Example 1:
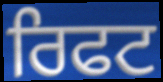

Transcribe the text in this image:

ਰਿਫਟ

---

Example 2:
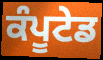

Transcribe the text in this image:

ਕੰਪੂਟੇਡ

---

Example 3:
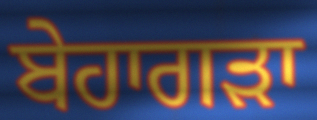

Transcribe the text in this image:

ਬੇਹਾਗੜਾ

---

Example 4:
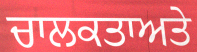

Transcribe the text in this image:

ਚਾਲਕਤਾਅਤੇ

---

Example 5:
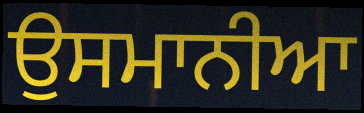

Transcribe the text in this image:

ਉਸਮਾਨੀਆ